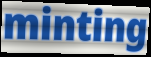
minting